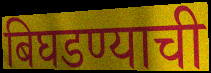
बिघडण्याची